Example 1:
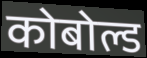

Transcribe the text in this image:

कोबोल्ड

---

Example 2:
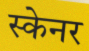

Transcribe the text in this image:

स्केनर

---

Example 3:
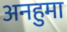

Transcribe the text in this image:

अनहुमा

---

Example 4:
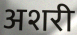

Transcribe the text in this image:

अशरी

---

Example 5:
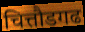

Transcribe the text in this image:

चित्तौडगढ